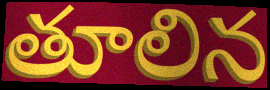
తూలిన